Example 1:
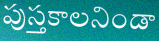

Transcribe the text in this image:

పుస్తకాలనిండా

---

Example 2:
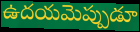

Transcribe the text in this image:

ఉదయమెప్పుడూ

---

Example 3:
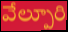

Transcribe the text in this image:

వేల్పూరి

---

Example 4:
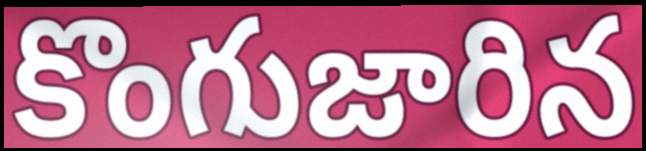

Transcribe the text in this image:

కొంగుజారిన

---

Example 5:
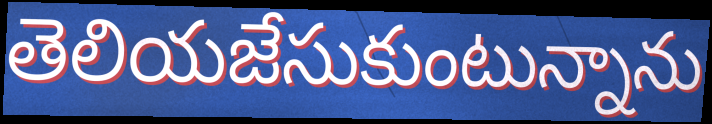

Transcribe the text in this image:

తెలియజేసుకుంటున్నాను